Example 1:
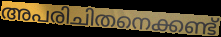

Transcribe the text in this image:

അപരിചിതനെക്കണ്ട്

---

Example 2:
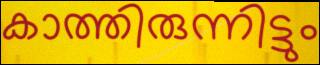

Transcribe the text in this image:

കാത്തിരുന്നിട്ടും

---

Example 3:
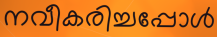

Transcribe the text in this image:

നവീകരിച്ചപ്പോൾ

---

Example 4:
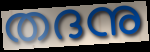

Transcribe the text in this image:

തദനു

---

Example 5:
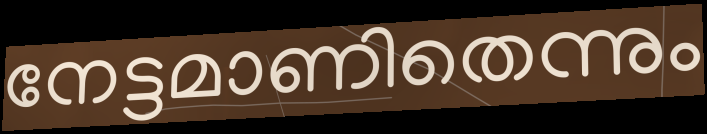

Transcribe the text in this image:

നേട്ടമാണിതെന്നും